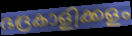
ഭദ്രകാളിക്കളം